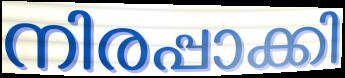
നിരപ്പാക്കി